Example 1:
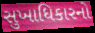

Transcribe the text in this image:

સુખાધિકારનો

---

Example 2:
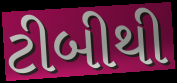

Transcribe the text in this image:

ટીબીથી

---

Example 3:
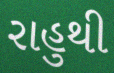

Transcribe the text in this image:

રાહુથી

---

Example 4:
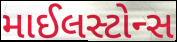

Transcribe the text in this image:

માઈલસ્ટોન્સ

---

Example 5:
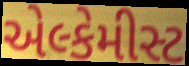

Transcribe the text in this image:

એલ્કેમીસ્ટ